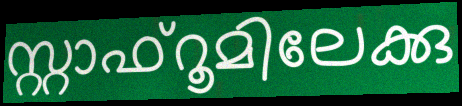
സ്റ്റാഫ്റൂമിലേക്കു